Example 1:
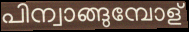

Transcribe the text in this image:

പിന്വാങ്ങുമ്പോള്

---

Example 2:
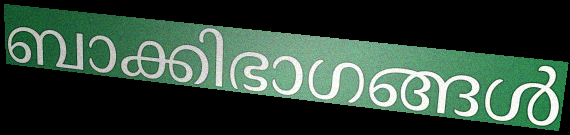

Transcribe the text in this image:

ബാക്കിഭാഗങ്ങൾ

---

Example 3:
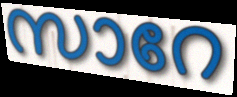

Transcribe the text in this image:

സാറേ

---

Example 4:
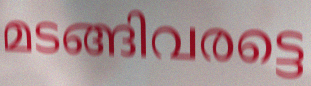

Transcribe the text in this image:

മടങ്ങിവരട്ടെ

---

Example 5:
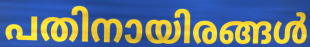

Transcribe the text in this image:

പതിനായിരങ്ങൾ